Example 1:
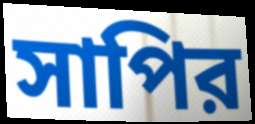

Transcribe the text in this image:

সাপির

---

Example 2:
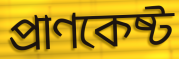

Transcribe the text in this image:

প্রাণকেষ্ট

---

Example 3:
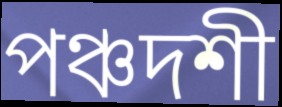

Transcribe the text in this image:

পঞ্চদশী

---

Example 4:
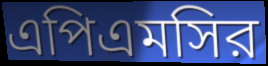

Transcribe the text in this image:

এপিএমসির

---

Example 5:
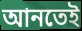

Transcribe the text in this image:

আনতেই